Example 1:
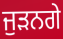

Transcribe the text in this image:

ਜੁਡ਼ਨਗੇ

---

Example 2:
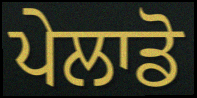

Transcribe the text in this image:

ਪੇਲਾਡੋ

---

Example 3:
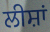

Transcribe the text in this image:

ਲੀਸ਼ਾਂ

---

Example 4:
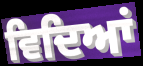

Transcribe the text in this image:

ਵਿਦਿਆਂ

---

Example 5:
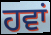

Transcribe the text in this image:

ਹਵਾਂ